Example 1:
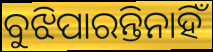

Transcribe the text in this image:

ବୁଝିପାରନ୍ତିନାହିଁ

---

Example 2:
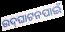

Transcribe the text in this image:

ଉଦ୍‌ଘାଟନପାଇଁ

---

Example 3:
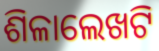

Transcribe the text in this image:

ଶିଳାଲେଖଟି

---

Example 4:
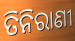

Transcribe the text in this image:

ତିନିରାଣୀ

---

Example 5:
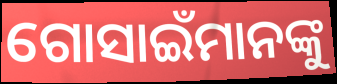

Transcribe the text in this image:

ଗୋସାଇଁମାନଙ୍କୁ